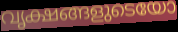
വൃക്ഷങ്ങളുടെയോ